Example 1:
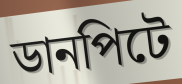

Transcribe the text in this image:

ডানপিটে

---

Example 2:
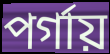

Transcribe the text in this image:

পর্গায়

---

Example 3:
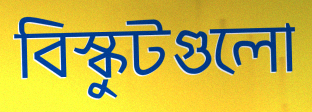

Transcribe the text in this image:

বিস্কুটগুলো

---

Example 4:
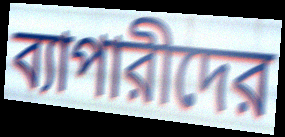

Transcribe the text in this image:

ব্যাপারীদের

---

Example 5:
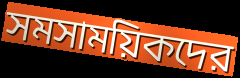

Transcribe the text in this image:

সমসাময়িকদের